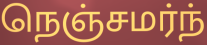
நெஞ்சமர்ந்